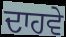
ਦਾਹਵੇ